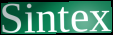
Sintex